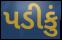
પડીકું